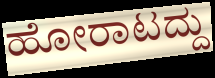
ಹೋರಾಟದ್ದು